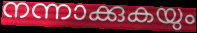
നന്നാക്കുകയും